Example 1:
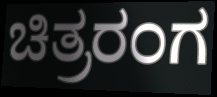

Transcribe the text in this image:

ಚಿತ್ರರಂಗ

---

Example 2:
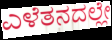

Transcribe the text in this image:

ಎಳೆತನದಲ್ಲೇ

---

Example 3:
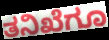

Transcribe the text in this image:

ತನಿಖೆಗೂ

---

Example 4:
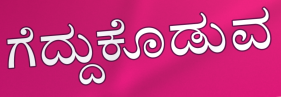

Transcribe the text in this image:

ಗೆದ್ದುಕೊಡುವ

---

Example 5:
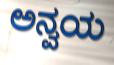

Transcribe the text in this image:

ಅನ್ವಯ